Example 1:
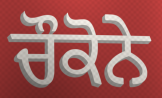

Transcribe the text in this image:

ਚੌਕੋਨੇ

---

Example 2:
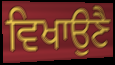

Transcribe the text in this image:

ਵਿਖਾਉਣੈ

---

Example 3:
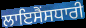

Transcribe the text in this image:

ਲਾਇਸੈਂਸਧਾਰੀ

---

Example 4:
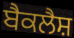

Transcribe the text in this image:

ਬੈਕਲੈਸ਼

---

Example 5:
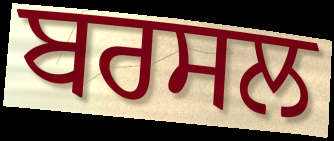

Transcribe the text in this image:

ਬਰਸਲ